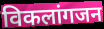
विकलांगजन